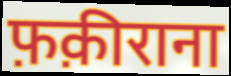
फ़क़ीराना